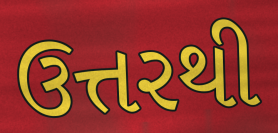
ઉત્તરથી